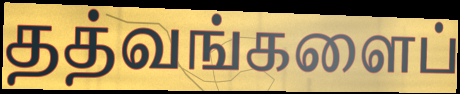
தத்வங்களைப்